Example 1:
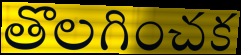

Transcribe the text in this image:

తొలగించక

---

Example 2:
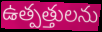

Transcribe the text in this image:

ఉత్పత్తులను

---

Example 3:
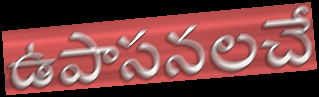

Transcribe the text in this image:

ఉపాసనలచే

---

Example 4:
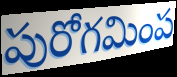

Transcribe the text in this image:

పురోగమింప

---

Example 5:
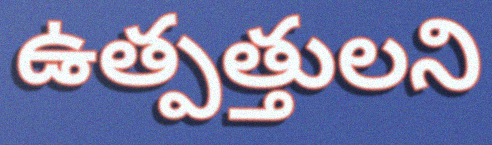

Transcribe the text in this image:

ఉత్పత్తులని